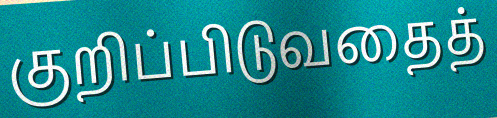
குறிப்பிடுவதைத்